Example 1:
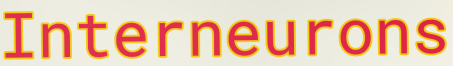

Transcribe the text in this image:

Interneurons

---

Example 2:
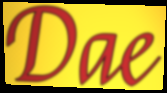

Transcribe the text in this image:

Dae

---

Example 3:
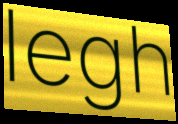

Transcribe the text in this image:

legh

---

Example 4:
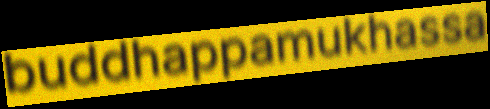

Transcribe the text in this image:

buddhappamukhassa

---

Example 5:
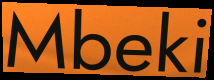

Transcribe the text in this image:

Mbeki